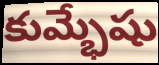
కుమ్భేషు